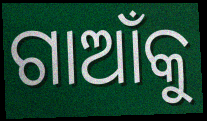
ଗାଆଁକୁ